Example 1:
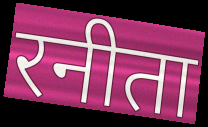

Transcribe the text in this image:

रनीता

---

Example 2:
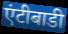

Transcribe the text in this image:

एंटीबाडी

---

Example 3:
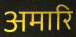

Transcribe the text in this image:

अमारि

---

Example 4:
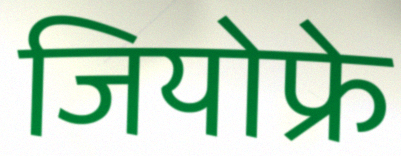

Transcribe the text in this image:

जियोफ्रे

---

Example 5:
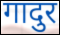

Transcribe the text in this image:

गादुर